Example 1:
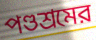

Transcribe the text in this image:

পণ্ডশ্রমের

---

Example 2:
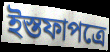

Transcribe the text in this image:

ইস্তফাপত্রে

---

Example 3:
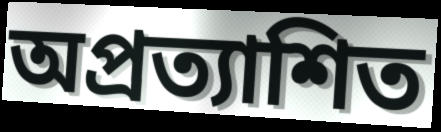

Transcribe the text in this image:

অপ্রত্যাশিত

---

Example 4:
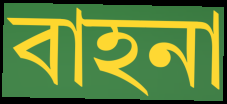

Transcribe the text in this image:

বাহনা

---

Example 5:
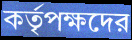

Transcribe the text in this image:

কর্তৃপক্ষদের